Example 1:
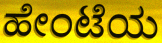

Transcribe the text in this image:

ಹೇಂಟೆಯ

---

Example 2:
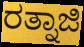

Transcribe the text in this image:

ರತ್ನಾಜಿ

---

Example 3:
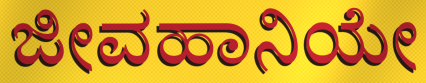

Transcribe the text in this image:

ಜೀವಹಾನಿಯೇ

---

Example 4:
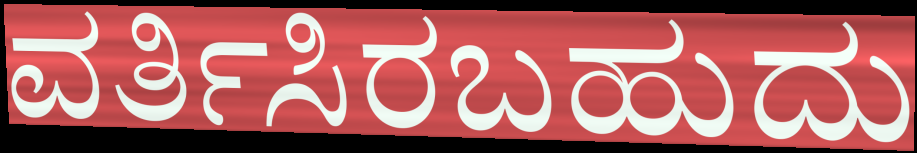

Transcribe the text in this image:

ವರ್ತಿಸಿರಬಹುದು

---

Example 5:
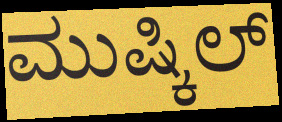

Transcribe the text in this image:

ಮುಷ್ಕಿಲ್